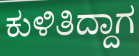
ಕುಳಿತಿದ್ದಾಗ